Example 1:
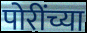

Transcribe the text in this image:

पोरींच्या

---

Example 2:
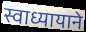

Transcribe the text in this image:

स्वाध्यायाने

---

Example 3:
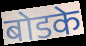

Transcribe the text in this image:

बोडके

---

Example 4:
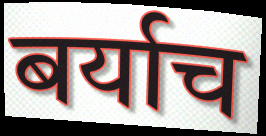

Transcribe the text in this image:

बर्याच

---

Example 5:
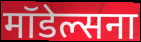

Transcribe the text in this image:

मॉडेल्सना